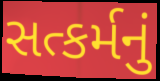
સત્કર્મનું